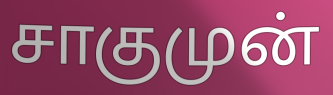
சாகுமுன்